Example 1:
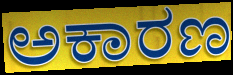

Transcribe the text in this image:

ಅಕಾರಣ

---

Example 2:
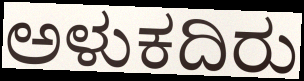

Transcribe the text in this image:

ಅಳುಕದಿರು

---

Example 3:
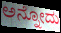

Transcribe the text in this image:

ಅನ್ನೋದು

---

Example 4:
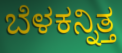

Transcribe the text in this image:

ಬೆಳಕನ್ನಿತ್ತ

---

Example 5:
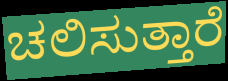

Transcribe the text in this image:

ಚಲಿಸುತ್ತಾರೆ